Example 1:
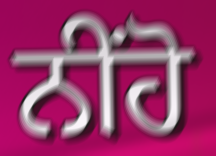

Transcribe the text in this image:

ਨੀਂਹੋ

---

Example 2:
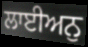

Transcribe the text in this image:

ਲਾਈਅਨੁ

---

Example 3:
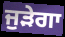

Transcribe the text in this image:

ਜੁੜੇਗਾ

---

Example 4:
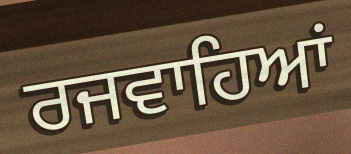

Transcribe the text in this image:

ਰਜਵਾਹਿਆਂ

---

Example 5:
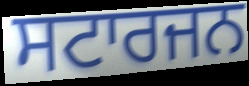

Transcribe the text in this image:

ਸਟਾਰਜਨ